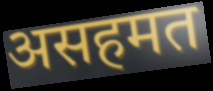
असहमत